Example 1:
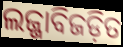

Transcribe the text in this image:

ଲଜ୍ଜାବିଜଡ଼ିତ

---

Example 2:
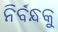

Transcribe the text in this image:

ନିର୍ବନ୍ଧକୁ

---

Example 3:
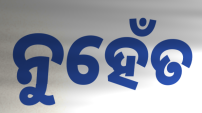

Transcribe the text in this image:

ନୁହେଁତ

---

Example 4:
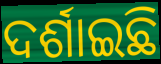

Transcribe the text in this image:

ଦର୍ଶାଇଛି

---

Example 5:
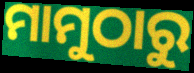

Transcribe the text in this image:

ମାମୁଠାରୁ